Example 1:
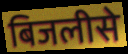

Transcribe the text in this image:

बिजलीसे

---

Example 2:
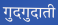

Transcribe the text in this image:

गुदगुदाती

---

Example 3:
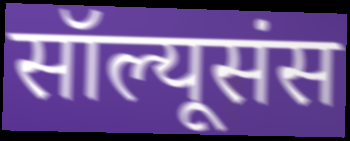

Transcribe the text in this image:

सॉल्यूसंस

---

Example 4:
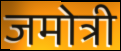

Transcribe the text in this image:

जमोत्री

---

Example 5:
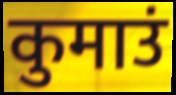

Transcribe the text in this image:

कुमाउं